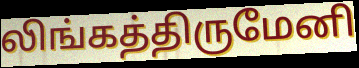
லிங்கத்திருமேனி